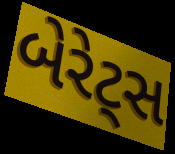
બેરેટ્સ